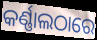
କର୍ଣ୍ଣାଲଠାରେ